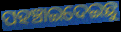
ପହଞ୍ଚାଇଦେଇଛୁ